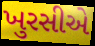
ખુરસીએ